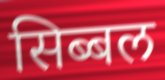
सिब्बल